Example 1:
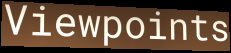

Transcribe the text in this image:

Viewpoints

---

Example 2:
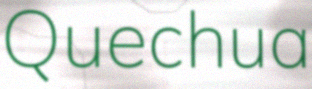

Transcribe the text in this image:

Quechua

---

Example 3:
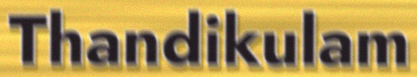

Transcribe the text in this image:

Thandikulam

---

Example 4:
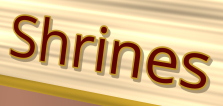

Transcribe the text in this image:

Shrines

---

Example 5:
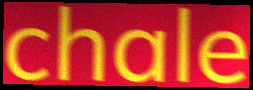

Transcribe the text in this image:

chale